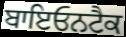
ਬਾਇਓਨਟੈਕ